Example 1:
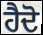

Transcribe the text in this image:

ਹੈਦੋ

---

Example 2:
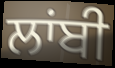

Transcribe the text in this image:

ਲਾਂਬੀ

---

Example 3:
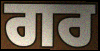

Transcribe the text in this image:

ਗਰ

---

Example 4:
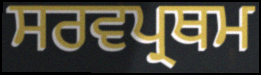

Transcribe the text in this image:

ਸਰਵਪ੍ਰਥਮ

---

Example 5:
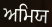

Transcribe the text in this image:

ਅਮਿਯ